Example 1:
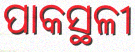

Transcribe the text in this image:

ପାକସ୍ଥଳୀ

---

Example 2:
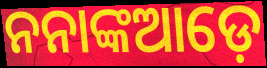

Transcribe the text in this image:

ନନାଙ୍କଆଡ଼େ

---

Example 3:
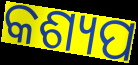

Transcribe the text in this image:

କଶ୍ୟପ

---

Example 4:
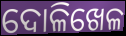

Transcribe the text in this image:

ଦୋଳିଖେଳ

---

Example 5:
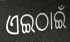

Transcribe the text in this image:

ଏଇଠାଇଁ